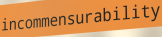
incommensurability